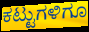
ಕಟ್ಟುಗಳಿಗೂ